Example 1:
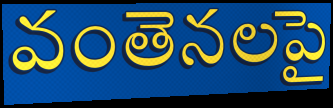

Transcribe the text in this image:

వంతెనలపై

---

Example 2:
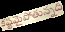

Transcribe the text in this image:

కష్టమైపోతున్నది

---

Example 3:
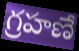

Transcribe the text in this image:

గ్రహణే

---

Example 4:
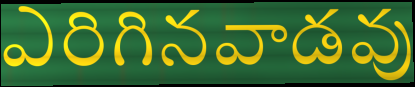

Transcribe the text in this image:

ఎరిగినవాడవు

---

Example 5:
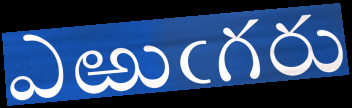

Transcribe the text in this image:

ఎఱుఁగరు